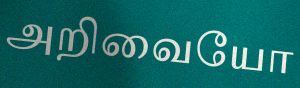
அறிவையோ